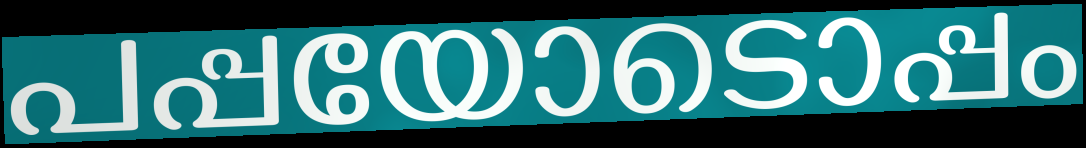
പപ്പയോടൊപ്പം